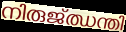
നിരുജ്ഝന്തി